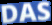
DAS